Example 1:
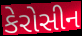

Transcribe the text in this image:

કેરોસીન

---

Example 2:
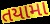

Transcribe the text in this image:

તયામા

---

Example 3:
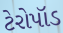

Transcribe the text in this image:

ટેરોપૉડ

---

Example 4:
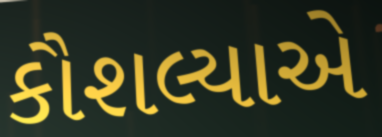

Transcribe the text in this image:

કૌશલ્યાએ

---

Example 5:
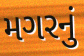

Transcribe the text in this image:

મગરનું